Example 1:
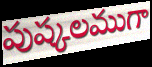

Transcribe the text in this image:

పుష్కలముగా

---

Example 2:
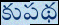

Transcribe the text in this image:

కుపథ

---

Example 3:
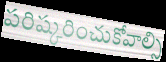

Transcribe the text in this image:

పరిష్కరించుకోవాల్సి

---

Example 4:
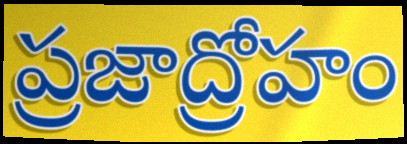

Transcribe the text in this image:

ప్రజాద్రోహం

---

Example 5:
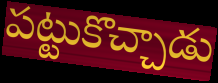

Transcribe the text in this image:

పట్టుకొచ్చాడు